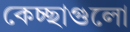
কেচ্ছাগুলো